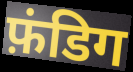
फ़ंडिग